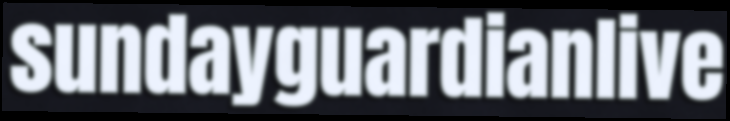
sundayguardianlive